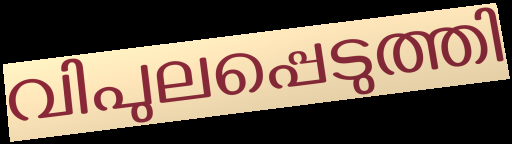
വിപുലപ്പെടുത്തി